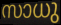
സാധു